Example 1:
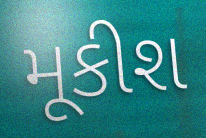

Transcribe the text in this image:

મૂકીશ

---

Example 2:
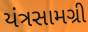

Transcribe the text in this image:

યંત્રસામગ્રી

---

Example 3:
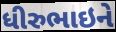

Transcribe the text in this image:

ધીરુભાઇને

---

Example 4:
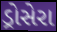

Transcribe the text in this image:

ડ્રોસેરા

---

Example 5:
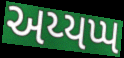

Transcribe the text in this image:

અય્યપ્પ